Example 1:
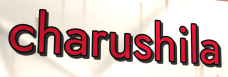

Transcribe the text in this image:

charushila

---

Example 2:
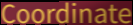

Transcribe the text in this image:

Coordinate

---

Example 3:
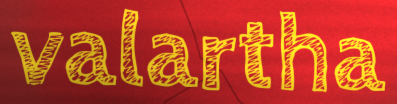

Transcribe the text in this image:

valartha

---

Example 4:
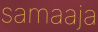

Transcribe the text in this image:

samaaja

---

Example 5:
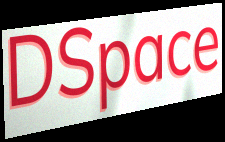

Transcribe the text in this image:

DSpace